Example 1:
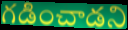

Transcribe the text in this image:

గడించాడని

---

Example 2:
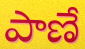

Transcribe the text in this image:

పాణే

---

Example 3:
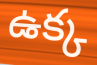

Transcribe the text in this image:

ఉక్క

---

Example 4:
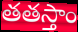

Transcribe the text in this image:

తతస్తాం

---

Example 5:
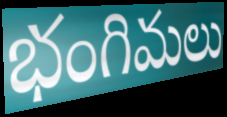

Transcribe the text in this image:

భంగిమలు